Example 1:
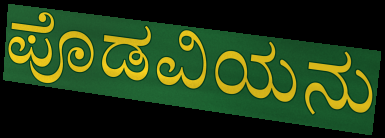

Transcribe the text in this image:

ಪೊಡವಿಯನು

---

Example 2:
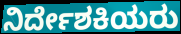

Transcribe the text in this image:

ನಿರ್ದೇಶಕಿಯರು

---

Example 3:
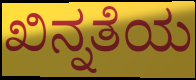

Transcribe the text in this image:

ಖಿನ್ನತೆಯ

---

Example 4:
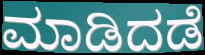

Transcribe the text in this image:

ಮಾಡಿದಡೆ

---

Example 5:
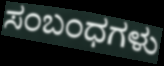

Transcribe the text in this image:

ಸಂಬಂಧಗಳು